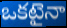
ఒకటైనా